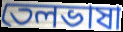
তেলভাষা